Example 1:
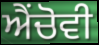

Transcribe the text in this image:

ਐਂਚੋਵੀ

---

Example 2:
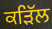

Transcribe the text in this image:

ਕੜਿੱਲ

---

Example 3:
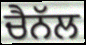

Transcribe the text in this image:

ਚੈਨੱਲ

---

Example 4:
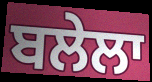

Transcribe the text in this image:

ਬਲੇਲਾ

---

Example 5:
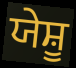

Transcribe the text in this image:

ਯੇਸ਼ੂ